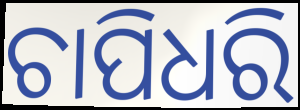
ଚାପିଧରି